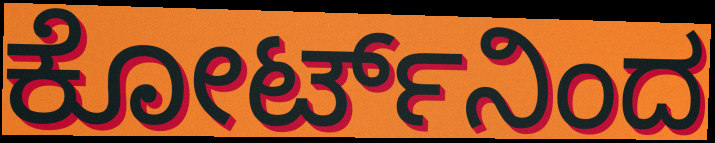
ಕೋರ್ಟ್‌ನಿಂದ